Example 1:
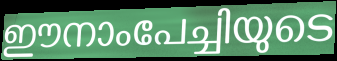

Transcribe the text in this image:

ഈനാംപേച്ചിയുടെ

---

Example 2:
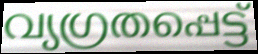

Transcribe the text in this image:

വ്യഗ്രതപ്പെട്ട്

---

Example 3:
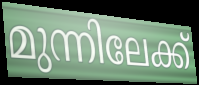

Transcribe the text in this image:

മുന്നിലേക്ക്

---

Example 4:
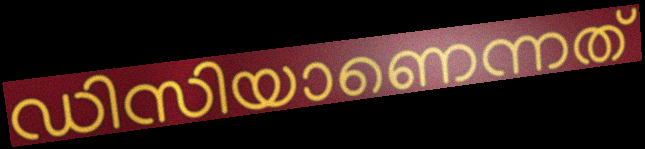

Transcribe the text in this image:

ഡിസിയാണെന്നത്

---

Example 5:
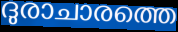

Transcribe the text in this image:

ദുരാചാരത്തെ